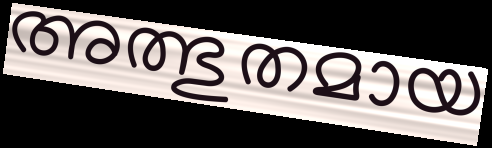
അത്ഭുതമായ